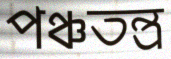
পঞ্চতন্ত্ৰ